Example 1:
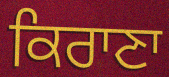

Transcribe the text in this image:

ਕਿਰਾਣਾ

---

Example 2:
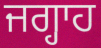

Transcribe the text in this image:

ਜਗ੍ਹਾਹ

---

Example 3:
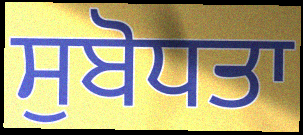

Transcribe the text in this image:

ਸੁਬੋਧਤਾ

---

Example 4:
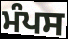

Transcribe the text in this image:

ਮੰਪਸ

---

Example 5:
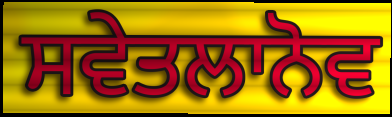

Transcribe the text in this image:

ਸਵੇਤਲਾਨੋਵ